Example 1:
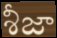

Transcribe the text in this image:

శీజా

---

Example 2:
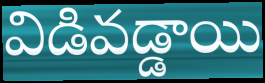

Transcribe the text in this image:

విడివడ్డాయి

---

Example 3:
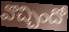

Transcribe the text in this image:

వొచ్చిందో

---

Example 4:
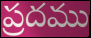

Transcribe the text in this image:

ప్రదము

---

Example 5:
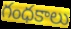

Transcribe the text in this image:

గంధకాలు